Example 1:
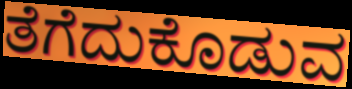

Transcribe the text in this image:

ತೆಗೆದುಕೊಡುವ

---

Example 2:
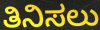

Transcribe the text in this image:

ತಿನಿಸಲು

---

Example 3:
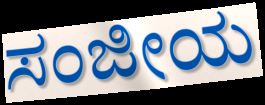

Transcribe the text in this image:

ಸಂಜೀಯ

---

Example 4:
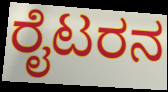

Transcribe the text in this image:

ರೈಟರನ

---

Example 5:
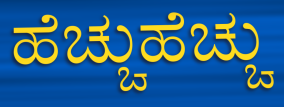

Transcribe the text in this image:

ಹೆಚ್ಚುಹೆಚ್ಚು